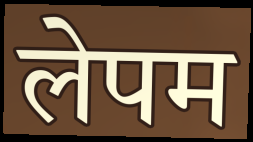
लेपम